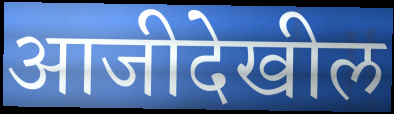
आजीदेखील